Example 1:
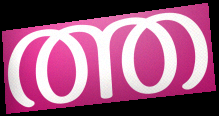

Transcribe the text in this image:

ത്ത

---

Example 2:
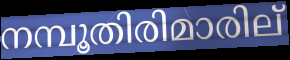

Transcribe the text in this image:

നമ്പൂതിരിമാരില്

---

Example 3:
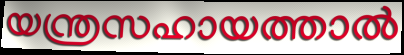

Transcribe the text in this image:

യന്ത്രസഹായത്താൽ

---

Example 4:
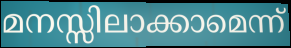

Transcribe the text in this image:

മനസ്സിലാക്കാമെന്ന്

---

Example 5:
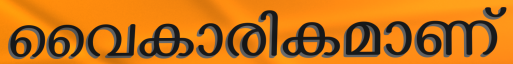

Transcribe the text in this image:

വൈകാരികമാണ്